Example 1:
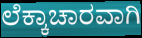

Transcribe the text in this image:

ಲೆಕ್ಕಾಚಾರವಾಗಿ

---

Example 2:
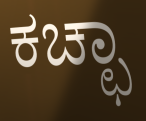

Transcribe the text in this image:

ಕಚ್ಛಾ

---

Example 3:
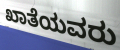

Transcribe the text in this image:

ಖಾತೆಯವರು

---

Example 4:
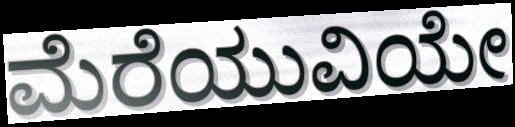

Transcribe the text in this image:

ಮೆರೆಯುವಿಯೇ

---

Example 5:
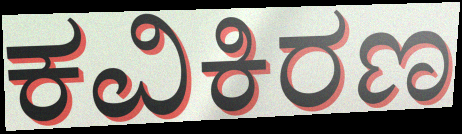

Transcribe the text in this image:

ಕವಿಕಿರಣ